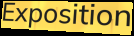
Exposition